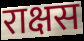
राक्षस